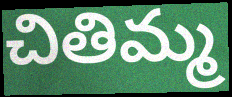
చితిమ్మ